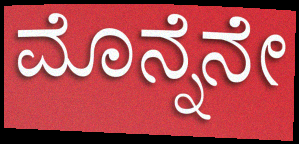
ಮೊನ್ನೆನೇ